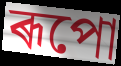
ৰূপো